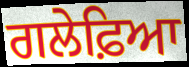
ਗਲੇਫ਼ਿਆ